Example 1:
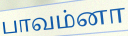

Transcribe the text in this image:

பாவம்னா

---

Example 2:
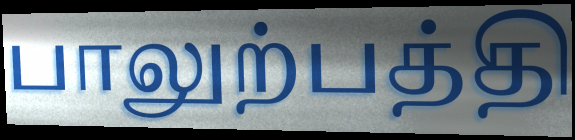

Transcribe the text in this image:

பாலுற்பத்தி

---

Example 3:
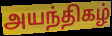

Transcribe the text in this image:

அயந்திகழ்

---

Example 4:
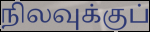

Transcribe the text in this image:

நிலவுக்குப்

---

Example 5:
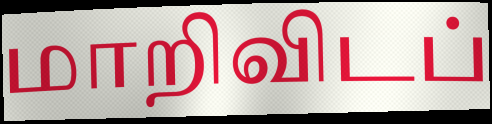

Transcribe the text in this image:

மாறிவிடப்